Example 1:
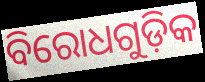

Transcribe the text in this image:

ବିରୋଧଗୁଡ଼ିକ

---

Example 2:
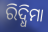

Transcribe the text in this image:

ରିଦ୍ଧିମା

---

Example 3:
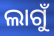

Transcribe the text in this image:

ଲାଗୁଁ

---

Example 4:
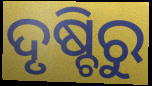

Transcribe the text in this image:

ଦୃଷ୍ଚିରୁ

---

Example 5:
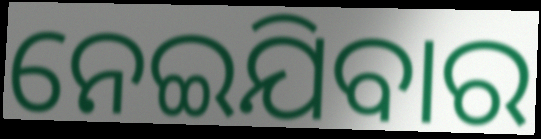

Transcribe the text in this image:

ନେଇଯିବାର